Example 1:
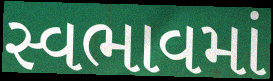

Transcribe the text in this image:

સ્વભાવમાં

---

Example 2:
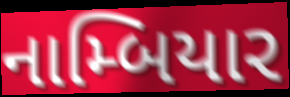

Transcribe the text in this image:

નામ્બિયાર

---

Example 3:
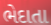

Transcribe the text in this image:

ભેદાતા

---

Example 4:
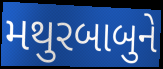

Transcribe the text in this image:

મથુરબાબુને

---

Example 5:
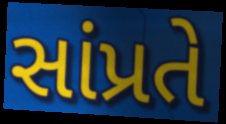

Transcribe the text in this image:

સાંપ્રતે